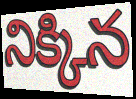
నిక్కిన